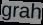
grah